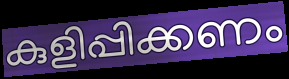
കുളിപ്പിക്കണം